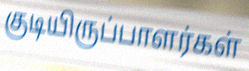
குடியிருப்பாளர்கள்